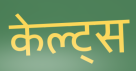
केल्ट्स